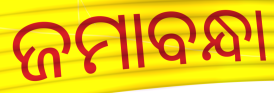
ଜମାବନ୍ଧା